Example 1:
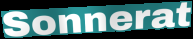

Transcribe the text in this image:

Sonnerat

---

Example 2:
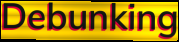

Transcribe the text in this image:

Debunking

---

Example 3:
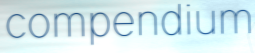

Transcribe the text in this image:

compendium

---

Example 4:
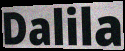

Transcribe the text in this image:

Dalila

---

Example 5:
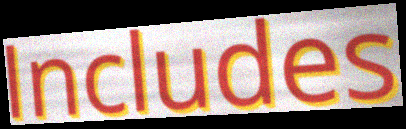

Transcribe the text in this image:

Includes